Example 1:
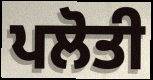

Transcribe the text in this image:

ਪਲੋਤੀ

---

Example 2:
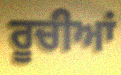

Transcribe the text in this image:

ਰੂਚੀਆਂ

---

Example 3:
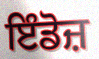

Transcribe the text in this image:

ਇੰਡੋਜ਼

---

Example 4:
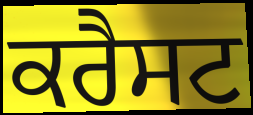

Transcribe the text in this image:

ਕਰੈਸਟ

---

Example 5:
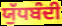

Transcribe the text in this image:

ਯੁੱਧਬੰਦੀ